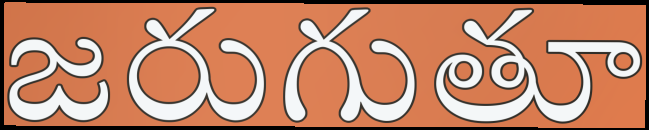
జరుగుతూ